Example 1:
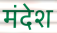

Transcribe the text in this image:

मंदेश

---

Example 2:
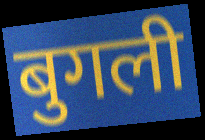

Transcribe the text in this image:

बुगली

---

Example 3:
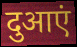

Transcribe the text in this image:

दुआएं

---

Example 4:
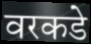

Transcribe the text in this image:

वरकडे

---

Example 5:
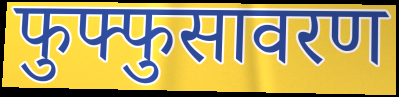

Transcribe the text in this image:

फुफ्फुसावरण